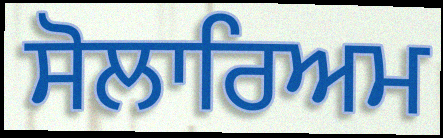
ਸੋਲਾਰਿਅਮ